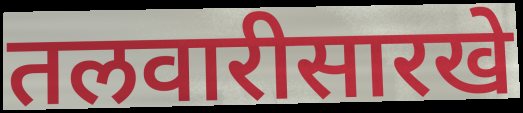
तलवारीसारखे